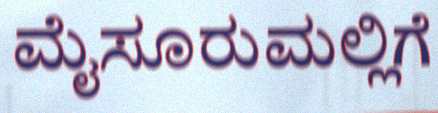
ಮೈಸೂರುಮಲ್ಲಿಗೆ